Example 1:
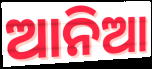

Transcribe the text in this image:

ଆନିଆ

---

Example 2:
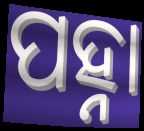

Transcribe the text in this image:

ପହ୍ନା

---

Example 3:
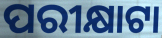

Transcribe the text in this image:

ପରୀକ୍ଷାଟା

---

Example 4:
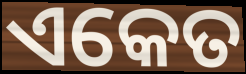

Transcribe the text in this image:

ଏକେତ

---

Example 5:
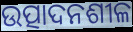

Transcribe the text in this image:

ଉତ୍ପାଦନଶୀଳ